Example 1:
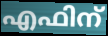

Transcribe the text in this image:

എഫിന്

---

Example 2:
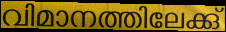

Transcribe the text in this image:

വിമാനത്തിലേക്കു്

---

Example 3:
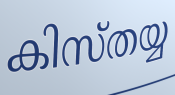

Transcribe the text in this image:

കിസ്തയ്യ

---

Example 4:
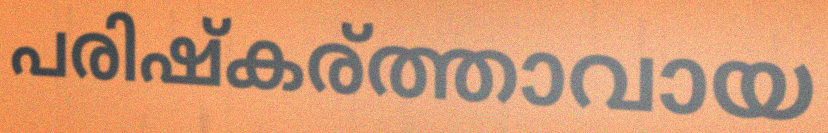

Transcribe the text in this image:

പരിഷ്കര്ത്താവായ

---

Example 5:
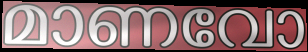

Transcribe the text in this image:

മാണവോ